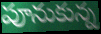
పూనుకున్న